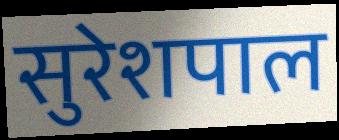
सुरेशपाल